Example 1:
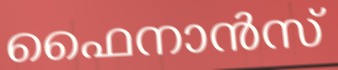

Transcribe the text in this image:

ഫൈനാൻസ്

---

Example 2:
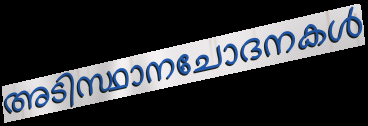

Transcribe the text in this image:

അടിസ്ഥാനചോദനകൾ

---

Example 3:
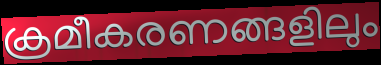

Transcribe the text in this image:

ക്രമീകരണങ്ങളിലും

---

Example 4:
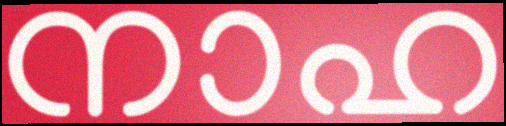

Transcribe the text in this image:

നാഹ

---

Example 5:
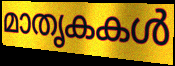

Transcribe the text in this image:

മാതൃകകൾ